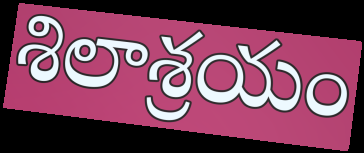
శిలాశ్రయం